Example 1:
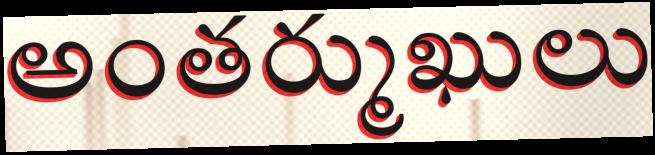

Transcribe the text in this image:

అంతర్ముఖులు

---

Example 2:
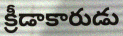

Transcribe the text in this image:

క్రీడాకారుడు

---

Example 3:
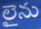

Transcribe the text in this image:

లైను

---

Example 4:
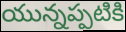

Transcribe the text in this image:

యున్నప్పటికి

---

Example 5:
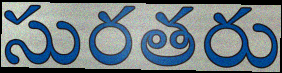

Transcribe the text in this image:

సురతరు